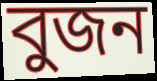
বুজন